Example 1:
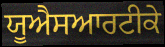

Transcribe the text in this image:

ਯੂਐਸਆਰਟੀਕੇ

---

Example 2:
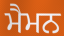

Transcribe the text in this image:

ਮੈਮਨ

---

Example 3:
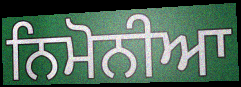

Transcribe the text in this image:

ਨਿਮੋਨੀਆ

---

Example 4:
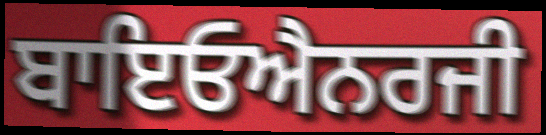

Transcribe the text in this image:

ਬਾਇਓਐਨਰਜੀ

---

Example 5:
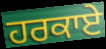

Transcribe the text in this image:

ਹਰਕਾਏ